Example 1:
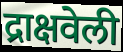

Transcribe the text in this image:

द्राक्षवेली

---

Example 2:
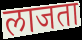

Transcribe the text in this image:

लाजता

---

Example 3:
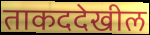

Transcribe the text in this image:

ताकददेखील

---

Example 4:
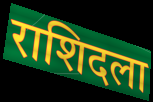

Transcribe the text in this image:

राशिदला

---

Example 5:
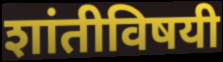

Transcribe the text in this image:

शांतीविषयी